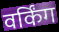
वर्किंग